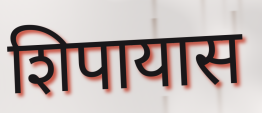
शिपायास